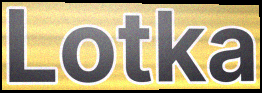
Lotka